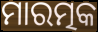
ମାରତ୍ମକ